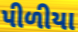
પીળીયા